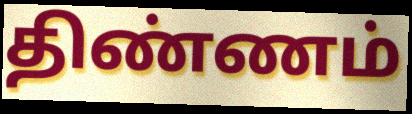
திண்ணம்